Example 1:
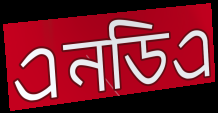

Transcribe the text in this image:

এনডিএ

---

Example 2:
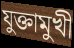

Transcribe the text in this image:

যুক্তামুখী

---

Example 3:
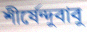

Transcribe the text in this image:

শীর্ষেন্দুবাবু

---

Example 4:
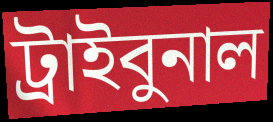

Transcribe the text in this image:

ট্রাইবুনাল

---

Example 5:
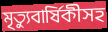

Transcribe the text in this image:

মৃত্যুবার্ষিকীসহ